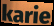
karie